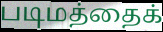
படிமத்தைக்